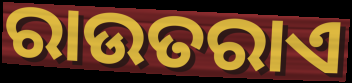
ରାଉତରାଏ